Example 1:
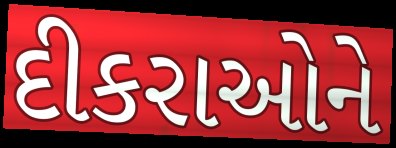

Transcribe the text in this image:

દીકરાઓને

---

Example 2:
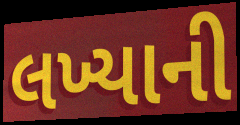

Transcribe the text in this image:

લખ્યાની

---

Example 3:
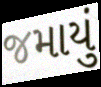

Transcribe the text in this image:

જમાયું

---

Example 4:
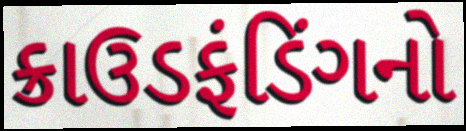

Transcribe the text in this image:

ક્રાઉડફંડિંગનો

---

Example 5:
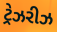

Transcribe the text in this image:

ટ્રેઝરીઝ